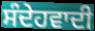
ਸੰਦੇਹਵਾਦੀ